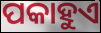
ପକାହୁଏ